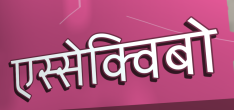
एस्सेक्विबो